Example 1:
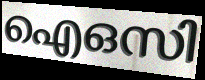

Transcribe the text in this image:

ഐഒസി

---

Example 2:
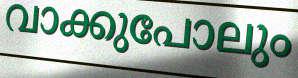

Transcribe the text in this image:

വാക്കുപോലും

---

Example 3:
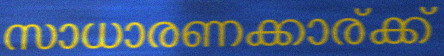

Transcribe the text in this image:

സാധാരണക്കാര്ക്ക്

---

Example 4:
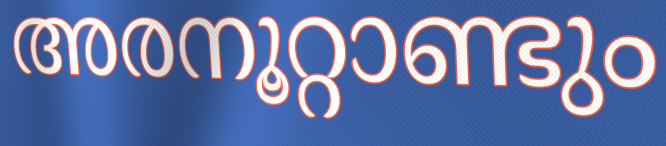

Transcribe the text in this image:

അരനൂറ്റാണ്ടും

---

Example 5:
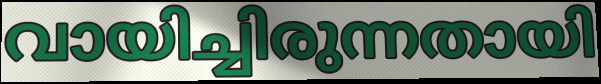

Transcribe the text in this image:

വായിച്ചിരുന്നതായി